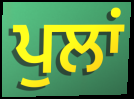
ਪੁਲਾਂ